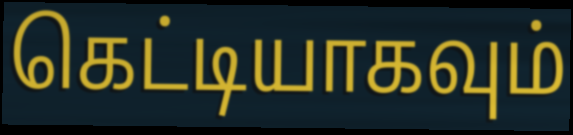
கெட்டியாகவும்